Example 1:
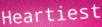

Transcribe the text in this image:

Heartiest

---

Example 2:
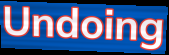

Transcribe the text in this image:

Undoing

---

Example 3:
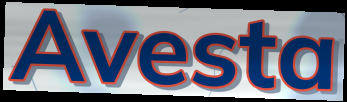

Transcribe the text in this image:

Avesta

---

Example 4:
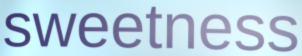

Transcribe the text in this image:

sweetness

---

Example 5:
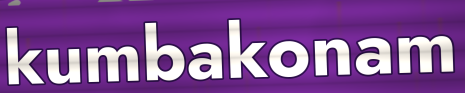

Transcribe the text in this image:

kumbakonam